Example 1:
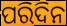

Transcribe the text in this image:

ପରିଦିନ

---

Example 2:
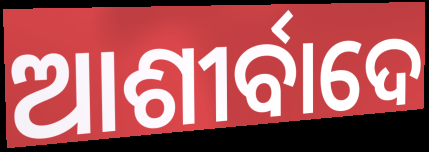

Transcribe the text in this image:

ଆଶୀର୍ବାଦେ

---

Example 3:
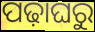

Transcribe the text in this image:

ପଢ଼ାଘରୁ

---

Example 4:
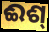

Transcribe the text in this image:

ଈଶ୍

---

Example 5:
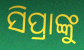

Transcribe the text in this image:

ସିପ୍ରାଙ୍କୁ